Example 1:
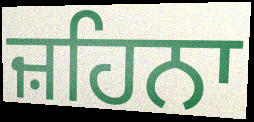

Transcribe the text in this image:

ਜ਼ਹਿਨਾ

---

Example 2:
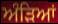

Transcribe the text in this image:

ਅੰੜਿਆਂ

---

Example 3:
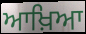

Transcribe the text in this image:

ਆਖ਼ਿਆ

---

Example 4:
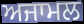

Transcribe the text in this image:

ਅਜਾਮਲ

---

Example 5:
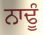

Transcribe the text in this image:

ਨਾਢੂੰ